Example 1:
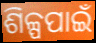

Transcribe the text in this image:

ଶିଳ୍ପପାଇଁ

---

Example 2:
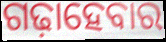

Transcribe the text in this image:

ଗଢ଼ାହେବାର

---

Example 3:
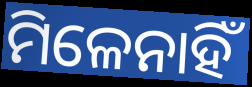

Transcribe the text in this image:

ମିଳେନାହିଁ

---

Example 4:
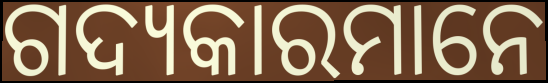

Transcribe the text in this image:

ଗଦ୍ୟକାରମାନେ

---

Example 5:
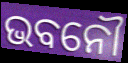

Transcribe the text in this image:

ଭବନୌ